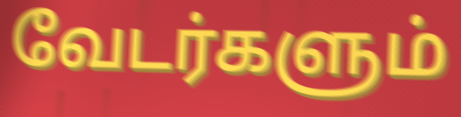
வேடர்களும்